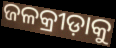
ଜଳକ୍ରୀଡ଼ାକୁ